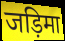
जड़िमा